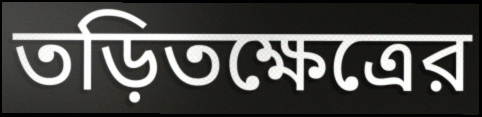
তড়িতক্ষেত্রের